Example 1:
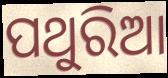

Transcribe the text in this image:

ପଥୁରିଆ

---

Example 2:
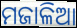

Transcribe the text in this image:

ମଜାଳିଆ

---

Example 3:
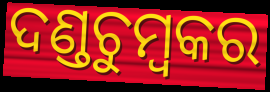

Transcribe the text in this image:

ଦଣ୍ଡଚୁମ୍ବକର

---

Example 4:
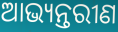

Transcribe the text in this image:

ଆଭ୍ୟନ୍ତରୀଣ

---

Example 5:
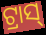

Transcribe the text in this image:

ଟ୍ରାସ୍